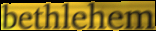
bethlehem